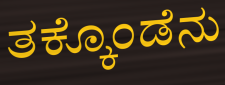
ತಕ್ಕೊಂಡೆನು